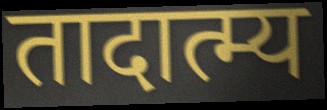
तादात्म्य